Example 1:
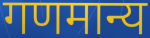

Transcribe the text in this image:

गणमान्य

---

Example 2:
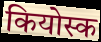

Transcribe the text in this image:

कियोस्क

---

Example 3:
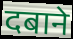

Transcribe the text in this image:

दबाने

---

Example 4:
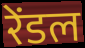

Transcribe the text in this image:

रेंडल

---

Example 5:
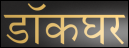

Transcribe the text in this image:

डॉकघर